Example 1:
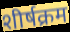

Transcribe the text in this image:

शीर्षक्रम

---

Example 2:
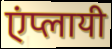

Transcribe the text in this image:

एंप्लायी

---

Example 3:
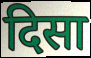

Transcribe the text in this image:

दिसा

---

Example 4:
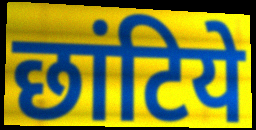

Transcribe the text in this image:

छांटिये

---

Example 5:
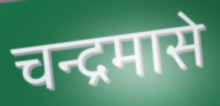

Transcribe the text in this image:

चन्द्रमासे